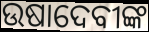
ଉଷାଦେବୀଙ୍କ